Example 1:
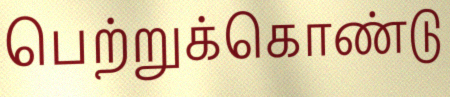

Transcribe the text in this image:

பெற்றுக்கொண்டு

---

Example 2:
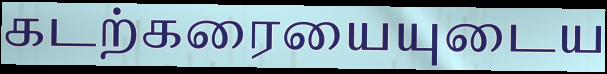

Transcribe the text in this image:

கடற்கரையையுடைய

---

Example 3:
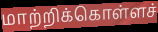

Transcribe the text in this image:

மாற்றிக்கொள்ளச்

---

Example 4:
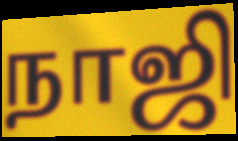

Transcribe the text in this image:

நாஜி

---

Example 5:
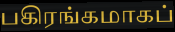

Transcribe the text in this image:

பகிரங்கமாகப்